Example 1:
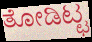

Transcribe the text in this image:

ತೋಡಿಟ್ಟ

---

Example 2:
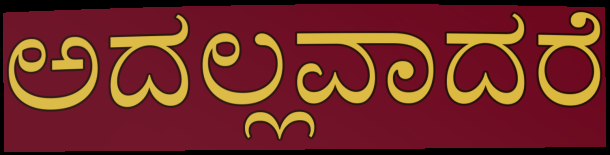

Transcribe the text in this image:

ಅದಲ್ಲವಾದರೆ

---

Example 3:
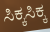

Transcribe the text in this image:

ಸಿಕ್ಕಸಿಕ್ಕ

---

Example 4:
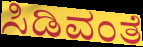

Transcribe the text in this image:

ಸಿಡಿವಂತೆ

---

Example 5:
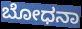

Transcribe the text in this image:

ಬೋಧನಾ